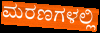
ಮರಣಗಳಲ್ಲಿ